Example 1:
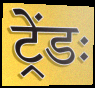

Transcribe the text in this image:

ट्रेंडः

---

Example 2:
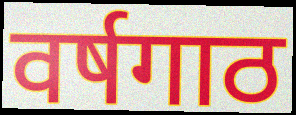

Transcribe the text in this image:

वर्षगाठ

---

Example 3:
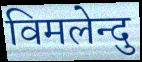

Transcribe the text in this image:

विमलेन्दु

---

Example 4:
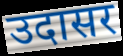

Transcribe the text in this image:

उदासर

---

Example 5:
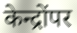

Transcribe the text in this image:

केन्द्रोंपर